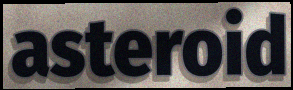
asteroid